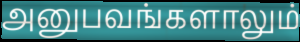
அனுபவங்களாலும்